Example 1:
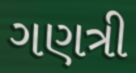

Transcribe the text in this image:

ગણત્રી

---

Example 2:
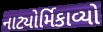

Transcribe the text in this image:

નાટ્યોર્મિકાવ્યો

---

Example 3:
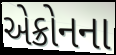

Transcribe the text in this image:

એક્રોનના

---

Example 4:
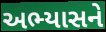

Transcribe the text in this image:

અભ્યાસને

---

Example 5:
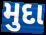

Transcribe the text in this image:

મુદા